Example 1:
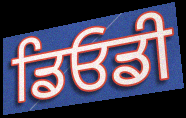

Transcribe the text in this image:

ਡਿਓਡੀ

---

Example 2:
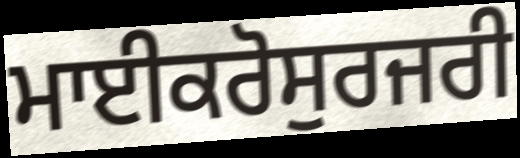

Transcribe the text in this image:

ਮਾਈਕਰੋਸੁਰਜਰੀ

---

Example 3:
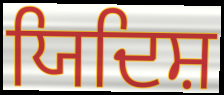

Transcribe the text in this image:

ਯਿਦਿਸ਼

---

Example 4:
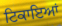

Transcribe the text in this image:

ਟਿਕਾਇਆਂ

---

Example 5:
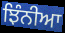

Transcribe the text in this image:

ਝਿੰਨੀਆ